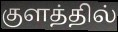
குளத்தில்